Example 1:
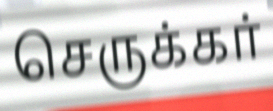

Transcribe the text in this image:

செருக்கர்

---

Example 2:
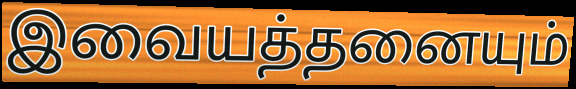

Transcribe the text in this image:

இவையத்தனையும்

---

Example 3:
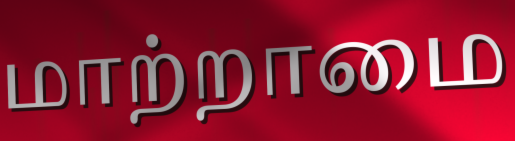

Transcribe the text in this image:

மாற்றாமை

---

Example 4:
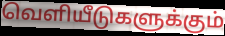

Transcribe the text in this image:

வெளியீடுகளுக்கும்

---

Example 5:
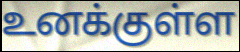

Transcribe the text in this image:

உனக்குள்ள